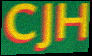
CJH